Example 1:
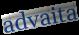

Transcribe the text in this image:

advaita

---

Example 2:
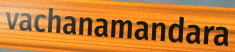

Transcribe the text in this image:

vachanamandara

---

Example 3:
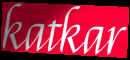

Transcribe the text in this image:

katkar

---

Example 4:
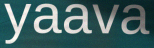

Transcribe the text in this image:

yaava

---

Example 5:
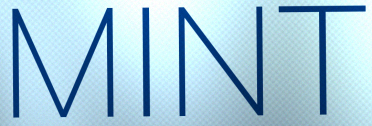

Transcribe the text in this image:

MINT